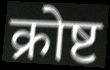
क्रोष्ट